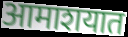
आमाशयात